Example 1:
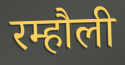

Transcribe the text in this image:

रम्हौली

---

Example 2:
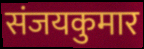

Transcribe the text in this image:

संजयकुमार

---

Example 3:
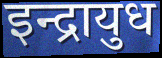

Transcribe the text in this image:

इन्द्रायुध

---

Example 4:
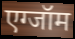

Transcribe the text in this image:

एग्जॉम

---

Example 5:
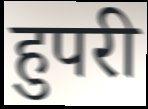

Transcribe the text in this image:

हुपरी